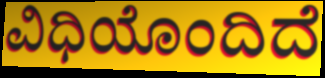
ವಿಧಿಯೊಂದಿದೆ